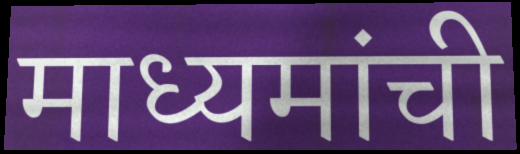
माध्यमांची